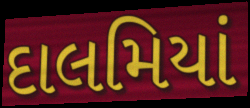
દાલમિયાં